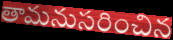
తామనుసరించిన